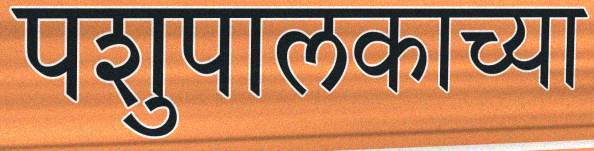
पशुपालकाच्या